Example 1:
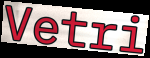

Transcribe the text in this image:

Vetri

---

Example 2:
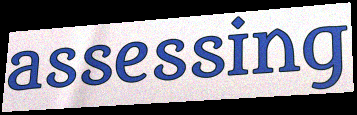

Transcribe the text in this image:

assessing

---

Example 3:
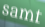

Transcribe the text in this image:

samt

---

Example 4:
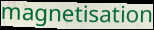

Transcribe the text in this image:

magnetisation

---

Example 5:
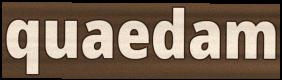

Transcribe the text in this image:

quaedam